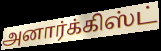
அனார்க்கிஸ்ட்